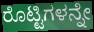
ರೊಟ್ಟಿಗಳನ್ನೇ